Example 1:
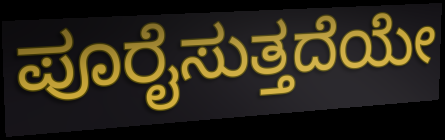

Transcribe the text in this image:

ಪೂರೈಸುತ್ತದೆಯೇ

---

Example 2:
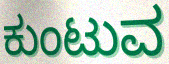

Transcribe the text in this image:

ಕುಂಟುವ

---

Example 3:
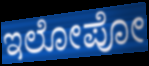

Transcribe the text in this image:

ಇಲೋಪೋ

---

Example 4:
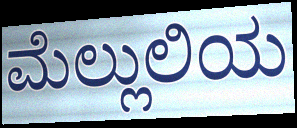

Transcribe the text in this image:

ಮೆಲ್ಲುಲಿಯ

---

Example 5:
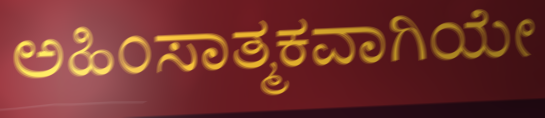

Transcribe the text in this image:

ಅಹಿಂಸಾತ್ಮಕವಾಗಿಯೇ